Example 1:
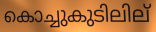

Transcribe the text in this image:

കൊച്ചുകുടിലില്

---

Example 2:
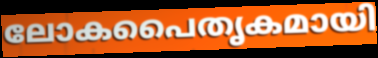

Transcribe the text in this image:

ലോകപൈതൃകമായി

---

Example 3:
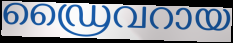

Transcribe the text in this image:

ഡ്രൈവറായ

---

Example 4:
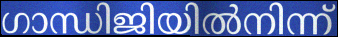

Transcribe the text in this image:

ഗാന്ധിജിയിൽനിന്ന്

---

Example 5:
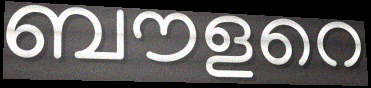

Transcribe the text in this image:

ബൗളറെ